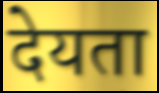
देयता